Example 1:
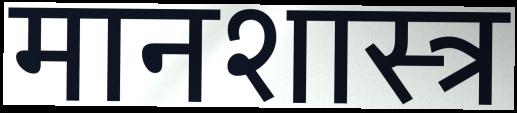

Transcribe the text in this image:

मानशास्त्र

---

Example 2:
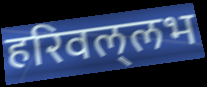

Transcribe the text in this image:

हरिवल्लभ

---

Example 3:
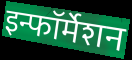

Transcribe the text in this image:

इन्फॉर्मेशन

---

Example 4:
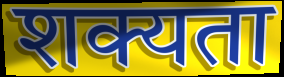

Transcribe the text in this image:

शक्‍यता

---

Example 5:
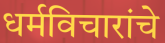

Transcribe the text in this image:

धर्मविचारांचे